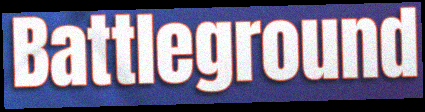
Battleground